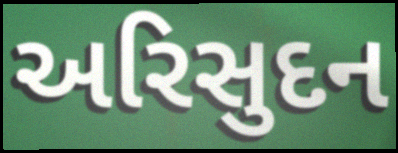
અરિસુદન